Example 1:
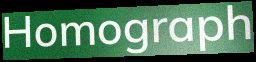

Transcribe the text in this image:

Homograph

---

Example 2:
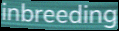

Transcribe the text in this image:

inbreeding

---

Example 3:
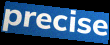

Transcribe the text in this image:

precise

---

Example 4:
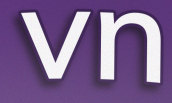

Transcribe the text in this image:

vn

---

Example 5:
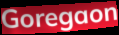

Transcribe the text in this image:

Goregaon